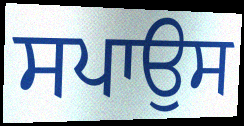
ਸਪਾਉਸ